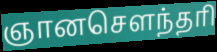
ஞானசெளந்தரி